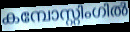
കമ്പോസ്റ്റിംഗിൽ